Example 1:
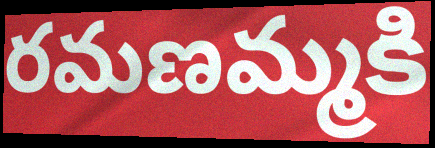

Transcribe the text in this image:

రమణమ్మకి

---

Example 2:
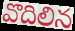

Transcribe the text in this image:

వొదిలిన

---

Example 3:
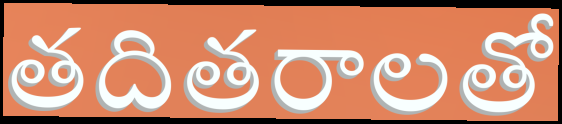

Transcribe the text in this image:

తదితరాలతో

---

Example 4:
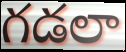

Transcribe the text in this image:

గడలా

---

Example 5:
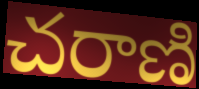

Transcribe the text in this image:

చరాణి